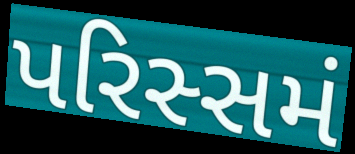
પરિસ્સમં